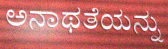
ಅನಾಥತೆಯನ್ನು